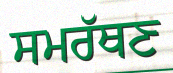
ਸਮਰੱਥਣ